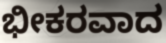
ಭೀಕರವಾದ